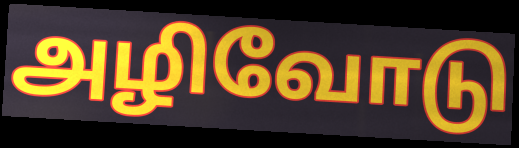
அழிவோடு